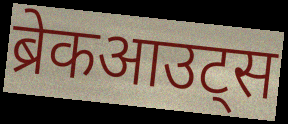
ब्रेकआउट्स